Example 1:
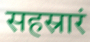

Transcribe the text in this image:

सहस्रारं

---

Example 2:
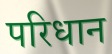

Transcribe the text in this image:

परिधान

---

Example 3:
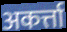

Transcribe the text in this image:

अकर्त्ता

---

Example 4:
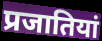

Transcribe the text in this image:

प्रजातियां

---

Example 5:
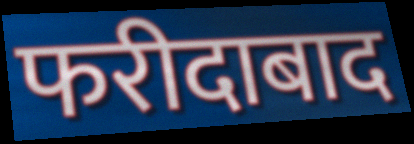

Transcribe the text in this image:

फरीदाबाद